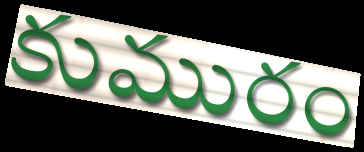
కుమురం